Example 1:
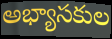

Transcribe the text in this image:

అభ్యాసకుల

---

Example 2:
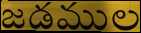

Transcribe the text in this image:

జడముల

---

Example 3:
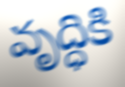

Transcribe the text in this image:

వృద్ధికి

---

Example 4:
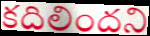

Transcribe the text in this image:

కదిలిందని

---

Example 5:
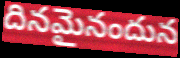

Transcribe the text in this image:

దినమైనందున